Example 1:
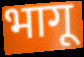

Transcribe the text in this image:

भागू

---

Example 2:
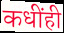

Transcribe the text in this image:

कधींही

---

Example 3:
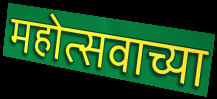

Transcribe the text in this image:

महोत्सवाच्या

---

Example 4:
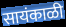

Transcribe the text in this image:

सायंकाळी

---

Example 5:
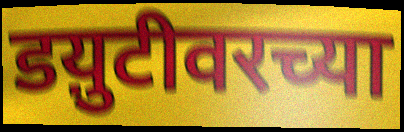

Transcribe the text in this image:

डय़ुटीवरच्या